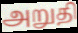
அறுதி